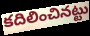
కదిలించినట్టు